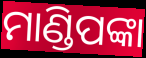
ମାଣ୍ଡିପଙ୍କା